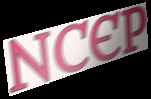
NCEP